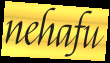
nehafu